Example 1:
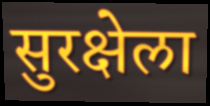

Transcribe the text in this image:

सुरक्षेला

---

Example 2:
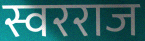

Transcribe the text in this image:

स्वरराज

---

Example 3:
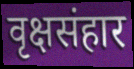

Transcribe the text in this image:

वृक्षसंहार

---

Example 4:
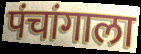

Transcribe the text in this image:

पंचांगाला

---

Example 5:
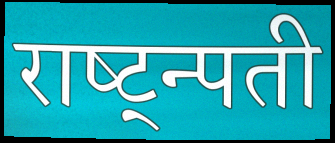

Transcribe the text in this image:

राष्ट्न्पती